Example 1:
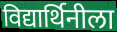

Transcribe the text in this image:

विद्यार्थिनीला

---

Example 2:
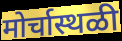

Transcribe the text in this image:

मोर्चास्थळी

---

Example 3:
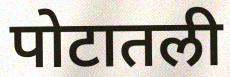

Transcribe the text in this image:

पोटातली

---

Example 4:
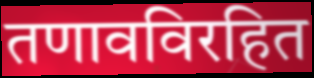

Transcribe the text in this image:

तणावविरहित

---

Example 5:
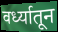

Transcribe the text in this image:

वर्ध्यातून